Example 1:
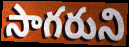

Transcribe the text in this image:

సాగరుని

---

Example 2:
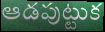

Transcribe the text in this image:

ఆడపుట్టుక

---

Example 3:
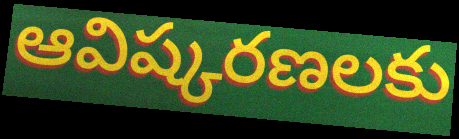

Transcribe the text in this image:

ఆవిష్కరణలకు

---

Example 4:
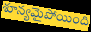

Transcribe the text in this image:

శూన్యమైపోయింది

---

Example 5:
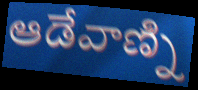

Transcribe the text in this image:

ఆడేవాణ్ని